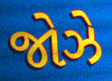
જોઝે